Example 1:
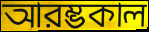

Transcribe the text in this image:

আরম্ভকাল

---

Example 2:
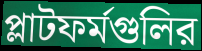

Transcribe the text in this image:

প্লাটফর্মগুলির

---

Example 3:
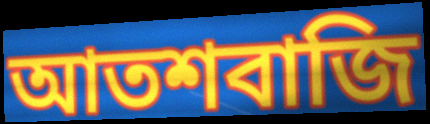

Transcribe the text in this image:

আতশবাজি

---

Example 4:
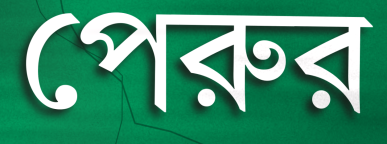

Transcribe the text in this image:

পেরুর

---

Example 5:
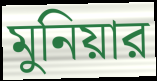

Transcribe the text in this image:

মুনিয়ার